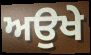
ਅਉਖੇ